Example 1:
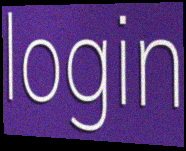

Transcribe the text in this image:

login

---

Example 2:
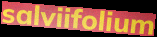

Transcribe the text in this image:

salviifolium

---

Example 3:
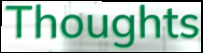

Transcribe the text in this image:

Thoughts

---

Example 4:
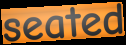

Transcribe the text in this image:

seated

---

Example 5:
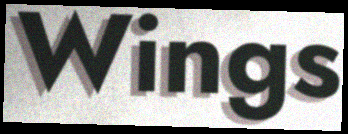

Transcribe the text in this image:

Wings